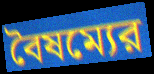
বৈষম্যের